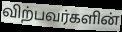
விற்பவர்களின்